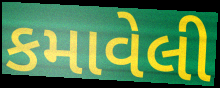
કમાવેલી